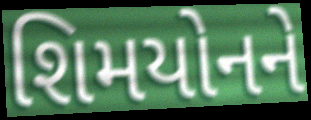
શિમયોનને